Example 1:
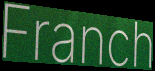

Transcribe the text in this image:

Franch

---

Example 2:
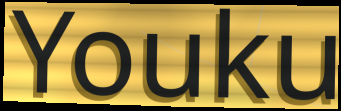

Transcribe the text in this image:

Youku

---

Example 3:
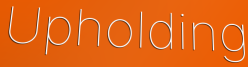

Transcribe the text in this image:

Upholding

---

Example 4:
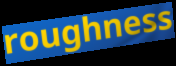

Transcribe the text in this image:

roughness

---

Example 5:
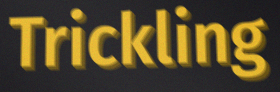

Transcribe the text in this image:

Trickling